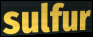
sulfur